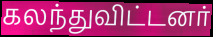
கலந்துவிட்டனர்